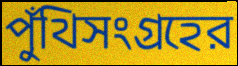
পুঁথিসংগ্রহের